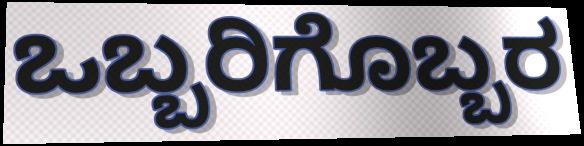
ಒಬ್ಬರಿಗೊಬ್ಬರ